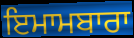
ਇਮਾਮਬਾਰਾ